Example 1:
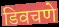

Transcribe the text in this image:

डिवचणे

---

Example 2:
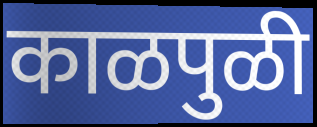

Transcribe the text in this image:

काळपुळी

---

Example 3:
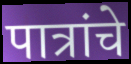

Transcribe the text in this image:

पात्रांचे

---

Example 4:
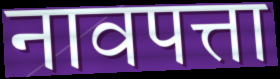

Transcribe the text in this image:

नावपत्ता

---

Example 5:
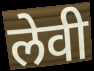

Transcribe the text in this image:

लेवी